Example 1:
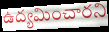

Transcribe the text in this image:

ఉద్యమించారని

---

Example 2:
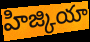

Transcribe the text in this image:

హిజ్కియా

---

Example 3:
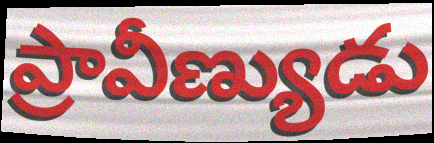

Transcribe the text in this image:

ప్రావీణ్యుడు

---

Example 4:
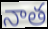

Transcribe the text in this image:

నాత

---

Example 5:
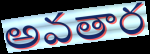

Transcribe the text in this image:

అవతార